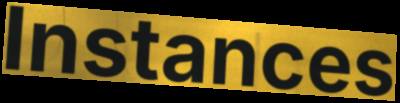
Instances